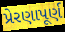
પ્રેરણાપૂર્ણ